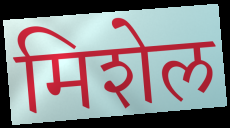
मिशेल